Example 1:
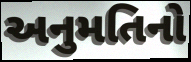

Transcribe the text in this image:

અનુમતિનો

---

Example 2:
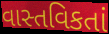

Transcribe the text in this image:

વાસ્તવિકતાં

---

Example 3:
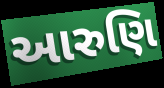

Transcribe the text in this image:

આરુણિ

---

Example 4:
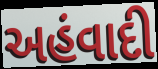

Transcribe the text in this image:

અહંવાદી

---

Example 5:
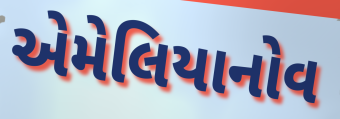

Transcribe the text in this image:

એમેલિયાનોવ